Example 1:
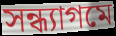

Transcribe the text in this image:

সন্ধ্যাগমে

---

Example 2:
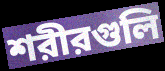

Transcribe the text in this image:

শরীরগুলি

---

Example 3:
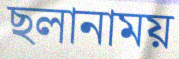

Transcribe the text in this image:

ছলানাময়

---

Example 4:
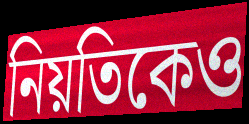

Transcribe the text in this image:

নিয়তিকেও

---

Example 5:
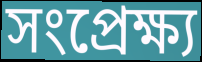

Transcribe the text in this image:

সংপ্রেক্ষ্য